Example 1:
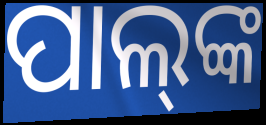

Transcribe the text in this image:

ପାଲ୍‌ଙ୍କ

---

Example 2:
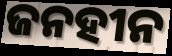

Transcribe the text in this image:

ଜନହୀନ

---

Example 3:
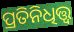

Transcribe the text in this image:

ପ୍ରତିନିଧିତ୍ତ୍ୱ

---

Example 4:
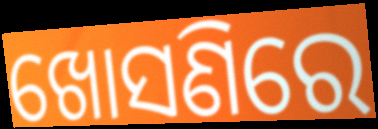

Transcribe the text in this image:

ଖୋସଣିରେ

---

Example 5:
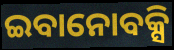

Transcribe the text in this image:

ଇବାନୋବକ୍ସି